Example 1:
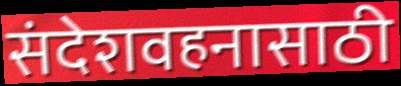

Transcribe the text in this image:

संदेशवहनासाठी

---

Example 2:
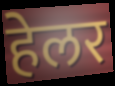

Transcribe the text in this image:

हेलर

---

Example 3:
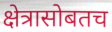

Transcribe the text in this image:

क्षेत्रासोबतच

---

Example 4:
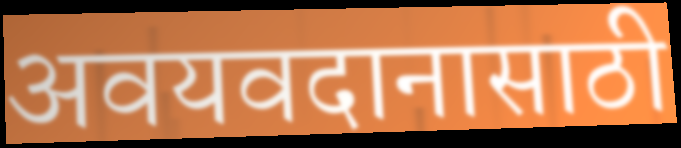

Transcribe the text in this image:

अवयवदानासाठी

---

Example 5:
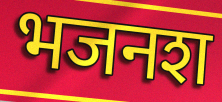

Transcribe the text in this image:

भजनश